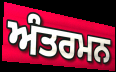
ਅੰਤਰਮਨ